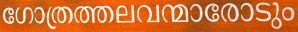
ഗോത്രത്തലവന്മാരോടും